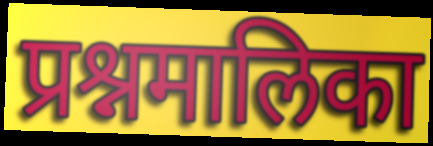
प्रश्नमालिका